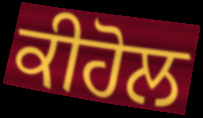
ਕੀਹੋਲ